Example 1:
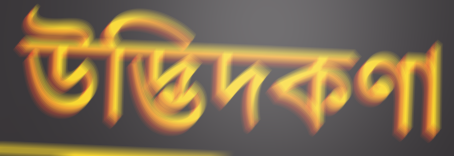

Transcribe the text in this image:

উদ্ভিদকণা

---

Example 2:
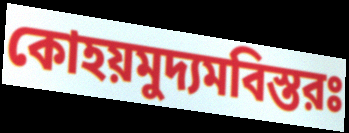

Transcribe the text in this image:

কোহয়মুদ্যমবিস্তরঃ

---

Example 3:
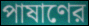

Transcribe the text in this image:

পাষাণের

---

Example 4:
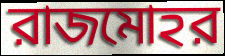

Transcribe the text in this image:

রাজমোহর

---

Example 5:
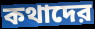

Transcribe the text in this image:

কথাদের